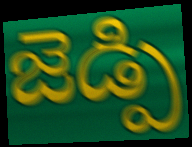
జెడ్పి